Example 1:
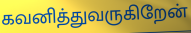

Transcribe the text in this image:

கவனித்துவருகிறேன்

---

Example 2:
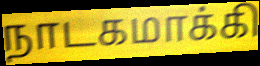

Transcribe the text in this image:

நாடகமாக்கி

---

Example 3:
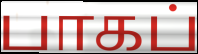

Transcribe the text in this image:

பாகப்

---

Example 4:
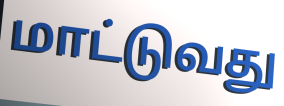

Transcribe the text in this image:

மாட்டுவது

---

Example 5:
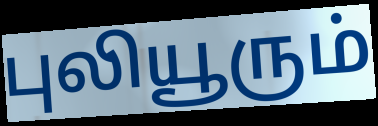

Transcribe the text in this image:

புலியூரும்